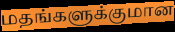
மதங்களுக்குமான